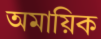
অমায়িক